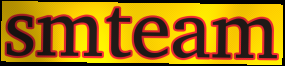
smteam